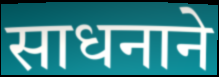
साधनाने